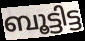
ബൂട്ടിട്ട